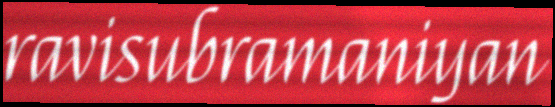
ravisubramaniyan